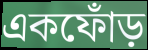
একফোঁড়